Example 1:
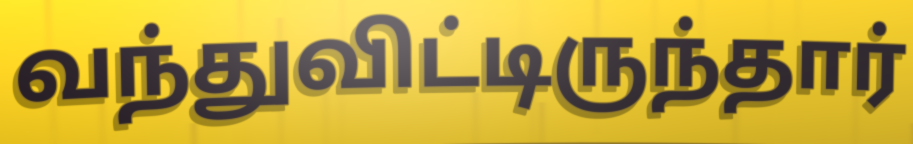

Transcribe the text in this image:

வந்துவிட்டிருந்தார்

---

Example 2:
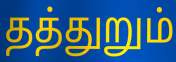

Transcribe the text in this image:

தத்துறும்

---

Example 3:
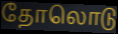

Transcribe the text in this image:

தோலொடு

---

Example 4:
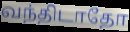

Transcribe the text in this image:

வந்திடாதோ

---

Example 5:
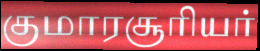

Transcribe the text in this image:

குமாரசூரியர்